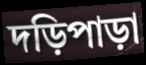
দড়িপাড়া